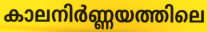
കാലനിർണ്ണയത്തിലെ